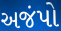
અજંપો